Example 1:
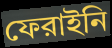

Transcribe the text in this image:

ফেরাইনি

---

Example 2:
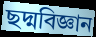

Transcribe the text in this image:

ছদ্মবিজ্ঞান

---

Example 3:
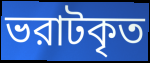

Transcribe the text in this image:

ভরাটকৃত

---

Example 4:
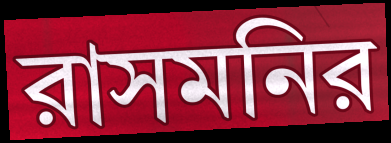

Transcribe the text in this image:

রাসমনির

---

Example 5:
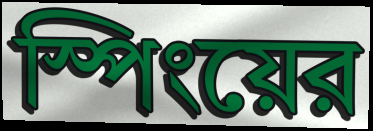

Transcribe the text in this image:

স্পিংয়ের